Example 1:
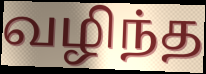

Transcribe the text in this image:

வழிந்த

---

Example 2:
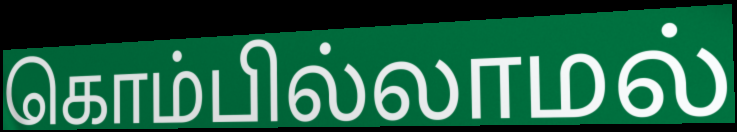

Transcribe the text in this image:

கொம்பில்லாமல்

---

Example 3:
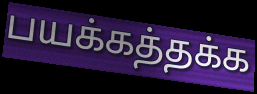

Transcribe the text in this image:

பயக்கத்தக்க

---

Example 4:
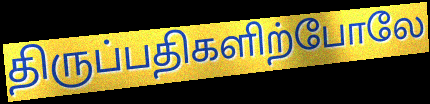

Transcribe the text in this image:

திருப்பதிகளிற்போலே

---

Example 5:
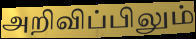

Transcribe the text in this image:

அறிவிப்பிலும்